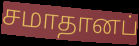
சமாதானப்